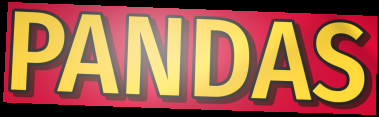
PANDAS